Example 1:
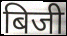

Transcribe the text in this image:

बिजी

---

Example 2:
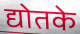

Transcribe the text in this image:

द्योतके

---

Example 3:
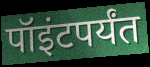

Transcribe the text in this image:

पॉइंटपर्यंत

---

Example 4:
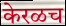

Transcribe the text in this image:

केरळच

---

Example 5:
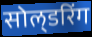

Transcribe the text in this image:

सोल्डरिंग